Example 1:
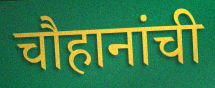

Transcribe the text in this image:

चौहानांची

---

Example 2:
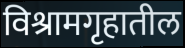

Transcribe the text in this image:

विश्रामगृहातील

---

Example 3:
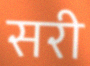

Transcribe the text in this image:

सरी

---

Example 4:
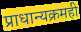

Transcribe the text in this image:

प्राधान्यक्रमही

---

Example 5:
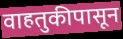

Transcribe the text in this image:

वाहतुकीपासून